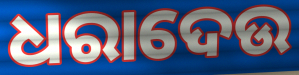
ଧରାଦେଉ